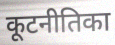
कूटनीतिका